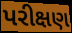
પરીક્ષણ